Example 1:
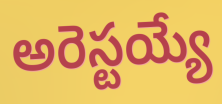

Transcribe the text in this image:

అరెస్టయ్యే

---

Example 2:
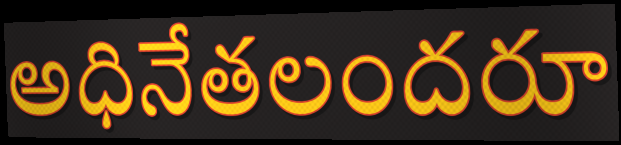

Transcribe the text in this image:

అధినేతలందరూ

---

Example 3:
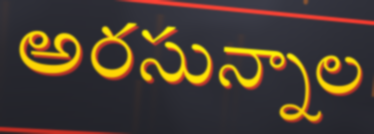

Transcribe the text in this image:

అరసున్నాల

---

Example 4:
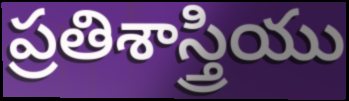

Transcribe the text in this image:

ప్రతిశాస్త్రియు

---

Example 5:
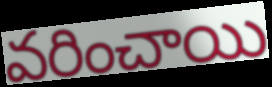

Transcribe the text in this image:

వరించాయి